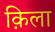
क़िला